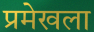
प्रमेखला